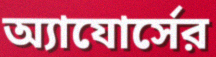
অ্যাযোর্সের